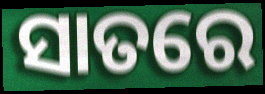
ସାତରେ